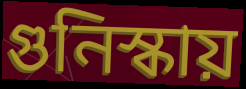
গুনিস্কায়